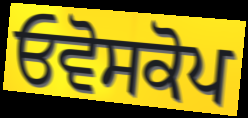
ਓਵੋਸਕੋਪ